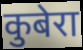
कुबेरा